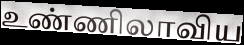
உண்ணிலாவிய